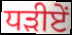
ਧੜੀਏਂ